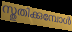
സ്തുതിക്കുമ്പോൾ